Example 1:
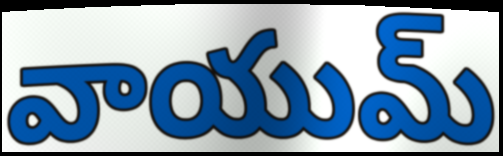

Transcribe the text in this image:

వాయుమ్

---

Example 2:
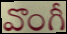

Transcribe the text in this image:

వొంగీ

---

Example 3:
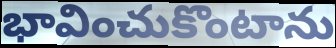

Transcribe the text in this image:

భావించుకొంటాను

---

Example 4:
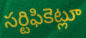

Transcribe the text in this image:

సర్టిఫికెట్లూ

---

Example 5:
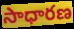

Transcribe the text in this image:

సాధారణ